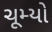
ચૂમ્યો